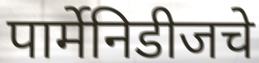
पार्मेनिडीजचे